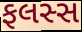
ફલસ્સ